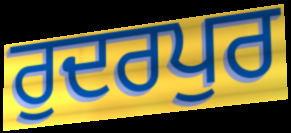
ਰੁਦਰਪੁਰ